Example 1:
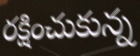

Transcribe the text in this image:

రక్షించుకున్న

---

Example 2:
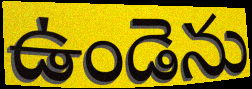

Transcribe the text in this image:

ఉండెను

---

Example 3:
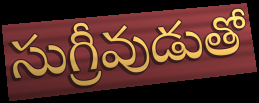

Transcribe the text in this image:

సుగ్రీవుడుతో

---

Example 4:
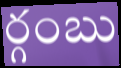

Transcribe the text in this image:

ర్గంబు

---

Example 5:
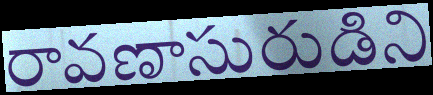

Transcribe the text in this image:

రావణాసురుడిని